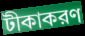
টীকাকরণ